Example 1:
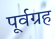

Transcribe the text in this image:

पूर्वग्रह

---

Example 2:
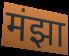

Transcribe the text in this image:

मंझा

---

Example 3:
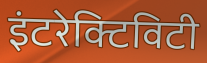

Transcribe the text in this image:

इंटरेक्टिविटी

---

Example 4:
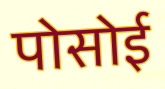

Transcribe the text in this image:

पोसोई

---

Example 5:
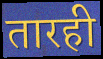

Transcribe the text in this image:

तारही